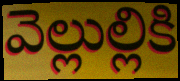
వెల్లుల్లికి